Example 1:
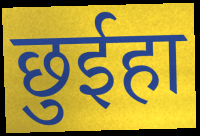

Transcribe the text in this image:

छुईहा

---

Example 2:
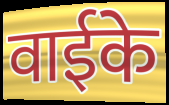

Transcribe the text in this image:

वाईके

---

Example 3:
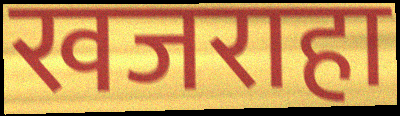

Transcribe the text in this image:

खजराहा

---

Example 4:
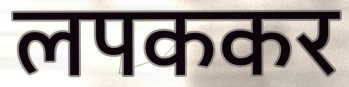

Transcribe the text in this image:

लपककर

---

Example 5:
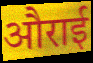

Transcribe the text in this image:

औराई